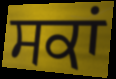
ਸਕਾਂ